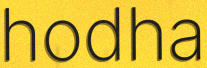
hodha